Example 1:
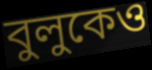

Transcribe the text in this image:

বুলুকেও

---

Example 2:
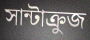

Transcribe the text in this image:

সান্টাক্রুজ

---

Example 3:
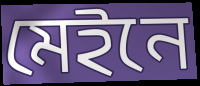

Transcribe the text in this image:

মেইনে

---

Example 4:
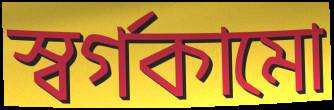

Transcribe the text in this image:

স্বর্গকামো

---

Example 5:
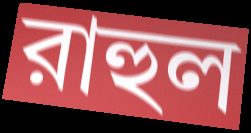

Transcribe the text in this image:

রাহুল